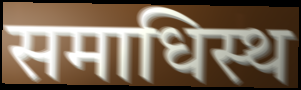
समाधिस्थ